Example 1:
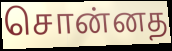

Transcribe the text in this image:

சொன்னத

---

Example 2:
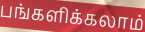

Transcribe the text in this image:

பங்களிக்கலாம்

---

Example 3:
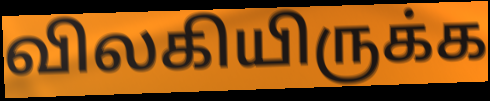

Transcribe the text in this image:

விலகியிருக்க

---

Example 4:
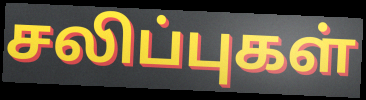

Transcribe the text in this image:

சலிப்புகள்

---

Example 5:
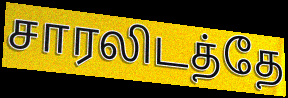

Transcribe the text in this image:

சாரலிடத்தே